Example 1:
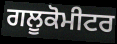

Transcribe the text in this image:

ਗਲੂਕੋਮੀਟਰ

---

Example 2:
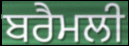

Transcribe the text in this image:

ਬਰੈਮਲੀ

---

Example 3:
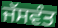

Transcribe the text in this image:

ਜੱਸਵੰਤ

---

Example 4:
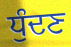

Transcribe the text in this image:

ਧੁੰਦਣ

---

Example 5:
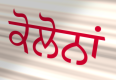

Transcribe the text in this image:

ਕੋਲੋਨਾਂ